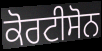
ਕੋਰਟੀਸੋਨ